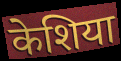
केशिया